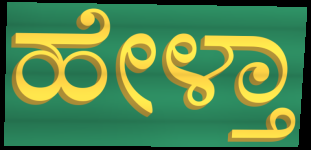
ಹೇಳ್ತಾ